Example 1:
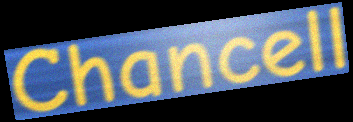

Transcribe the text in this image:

Chancell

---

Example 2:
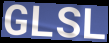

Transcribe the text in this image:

GLSL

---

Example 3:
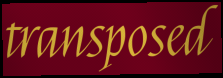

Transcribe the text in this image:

transposed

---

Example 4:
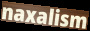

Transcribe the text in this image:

naxalism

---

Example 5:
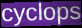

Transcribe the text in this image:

cyclops